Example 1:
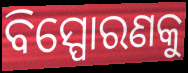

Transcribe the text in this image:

ବିସ୍ପୋରଣକୁ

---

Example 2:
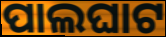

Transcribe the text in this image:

ପାଲଘାଟ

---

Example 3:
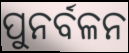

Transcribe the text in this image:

ପୁନର୍ବଳନ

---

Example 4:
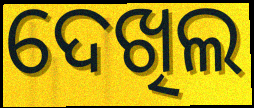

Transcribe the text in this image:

ଦେଖିଲ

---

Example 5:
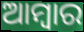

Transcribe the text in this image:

ଆମ୍ବାର